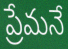
ప్రేమనే